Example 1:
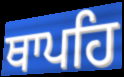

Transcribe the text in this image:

ਥਾਪਹਿ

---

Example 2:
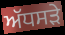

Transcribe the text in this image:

ਅੱਧਸੜੇ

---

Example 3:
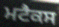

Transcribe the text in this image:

ਮਟੈਕਸ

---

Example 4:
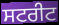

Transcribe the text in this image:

ਸਟਰੀਟ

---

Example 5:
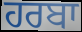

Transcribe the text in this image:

ਹਰਬਾ